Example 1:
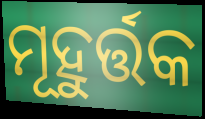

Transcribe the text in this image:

ମୂହୁର୍ତ୍ତକ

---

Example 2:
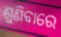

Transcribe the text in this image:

ଶୁଣିବାରେ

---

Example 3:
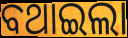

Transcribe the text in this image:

ବଥାଇଲା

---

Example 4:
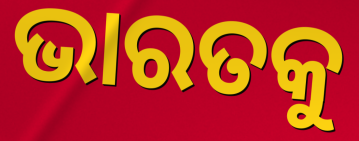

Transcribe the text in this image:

ଭାରତକୁ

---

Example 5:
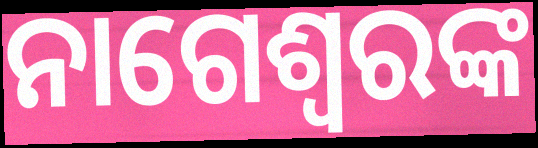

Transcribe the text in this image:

ନାଗେଶ୍ୱରଙ୍କ